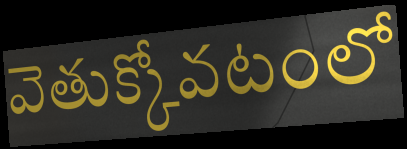
వెతుక్కోవటంలో